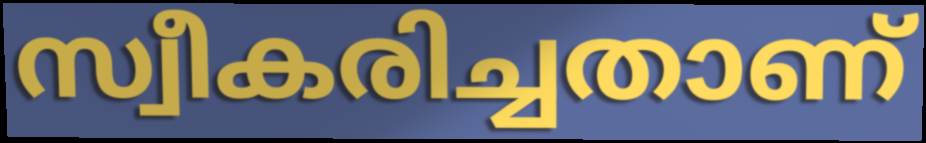
സ്വീകരിച്ചതാണ്